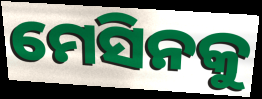
ମେସିନକୁ